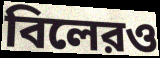
বিলেরও